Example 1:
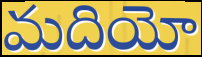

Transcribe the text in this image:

మదియో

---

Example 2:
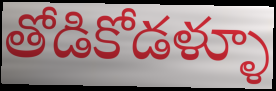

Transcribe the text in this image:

తోడికోడళ్ళూ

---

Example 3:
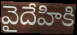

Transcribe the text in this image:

వైదేహికి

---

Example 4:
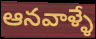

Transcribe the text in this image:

ఆనవాళ్ళే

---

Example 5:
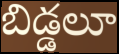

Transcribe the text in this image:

బిడ్డలూ